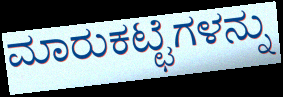
ಮಾರುಕಟ್ಟೆಗಳನ್ನು